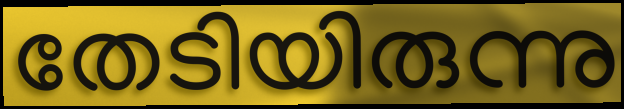
തേടിയിരുന്നു